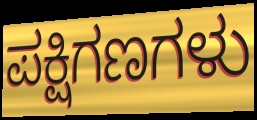
ಪಕ್ಷಿಗಣಗಳು